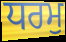
ਧਰਮੁ